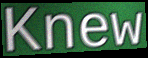
Knew